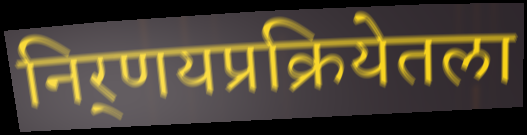
निर्णयप्रक्रियेतला